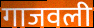
गाजवली